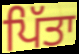
ਪਿੱਤਾ